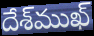
దేశ్‌ముఖ్